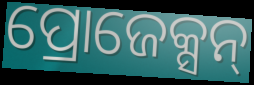
ପ୍ରୋଜେକ୍ସନ୍